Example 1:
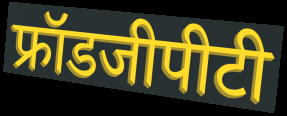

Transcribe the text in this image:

फ्रॉडजीपीटी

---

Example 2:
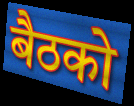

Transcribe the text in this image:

बैठको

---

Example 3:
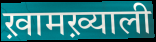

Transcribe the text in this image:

ख़ामख़्याली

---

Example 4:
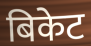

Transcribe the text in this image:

बिकेट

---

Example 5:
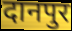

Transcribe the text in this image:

दानपुर